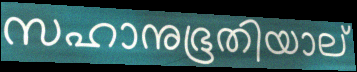
സഹാനുഭൂതിയാല്